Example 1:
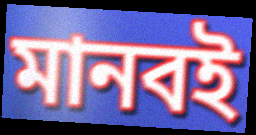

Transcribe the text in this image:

মানবই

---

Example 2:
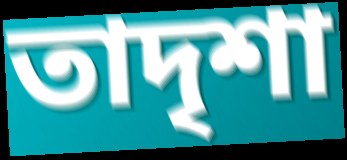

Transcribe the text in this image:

তাদৃশা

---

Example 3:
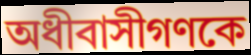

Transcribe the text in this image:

অধীবাসীগণকে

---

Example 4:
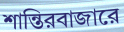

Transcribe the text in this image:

শান্তিরবাজারে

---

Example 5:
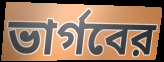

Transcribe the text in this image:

ভার্গবের